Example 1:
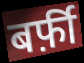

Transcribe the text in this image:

बर्फ़ी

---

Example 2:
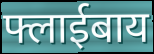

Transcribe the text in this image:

फ्लाईबाय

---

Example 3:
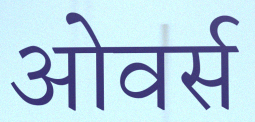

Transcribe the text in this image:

ओवर्स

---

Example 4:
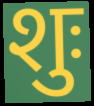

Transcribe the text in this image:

शुः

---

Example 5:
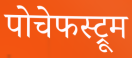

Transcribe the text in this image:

पोचेफस्ट्रूम